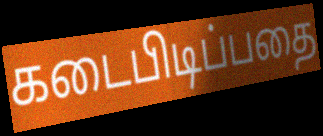
கடைபிடிப்பதை